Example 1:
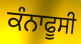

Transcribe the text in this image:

ਕੰਨਾਫੂਸੀ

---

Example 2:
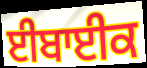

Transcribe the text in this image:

ਈਬਾਈਕ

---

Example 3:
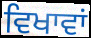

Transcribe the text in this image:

ਵਿਖਾਵਾਂ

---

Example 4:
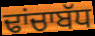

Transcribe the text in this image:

ਢਾਂਚਾਬੱਧ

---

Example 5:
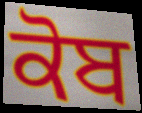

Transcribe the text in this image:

ਕੋਬ